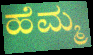
ಹೆಮ್ಮ